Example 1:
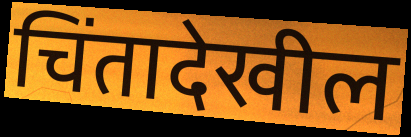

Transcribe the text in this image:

चिंतादेखील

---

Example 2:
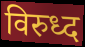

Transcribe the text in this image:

विरुध्द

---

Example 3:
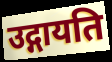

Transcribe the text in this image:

उद्गायति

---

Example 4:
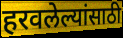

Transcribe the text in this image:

हरवलेल्यांसाठी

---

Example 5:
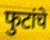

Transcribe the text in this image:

फुटांचे